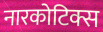
नारकोटिक्स